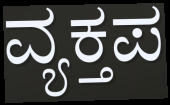
ವ್ಯಕ್ತಪ